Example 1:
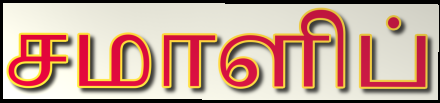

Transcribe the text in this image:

சமாளிப்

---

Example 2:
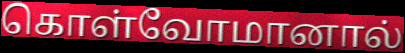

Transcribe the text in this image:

கொள்வோமானால்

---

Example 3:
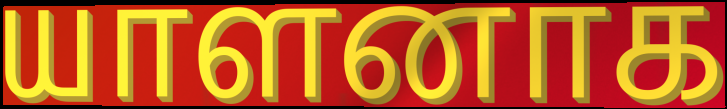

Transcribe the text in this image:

யாளனாக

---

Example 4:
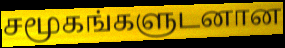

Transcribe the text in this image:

சமூகங்களுடனான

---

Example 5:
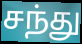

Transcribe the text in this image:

சந்து